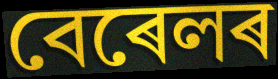
বেৰেলৰ